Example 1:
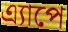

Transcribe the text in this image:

এ্যাপে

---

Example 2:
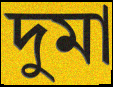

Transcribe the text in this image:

দুমা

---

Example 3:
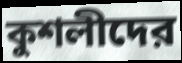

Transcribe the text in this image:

কুশলীদের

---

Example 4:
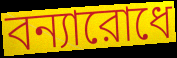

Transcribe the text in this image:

বন্যারোধে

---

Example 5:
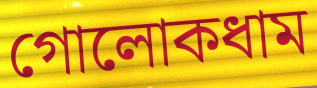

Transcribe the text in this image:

গোলোকধাম